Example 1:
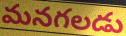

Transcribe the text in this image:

మనగలడు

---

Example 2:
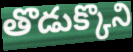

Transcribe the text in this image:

తొడుక్కొని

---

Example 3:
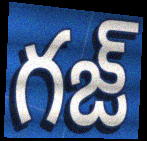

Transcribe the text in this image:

గజ్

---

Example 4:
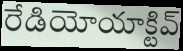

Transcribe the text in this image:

రేడియోయాక్టివ్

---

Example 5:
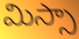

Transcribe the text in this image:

మిస్సా